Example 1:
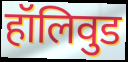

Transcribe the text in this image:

हॉलिवुड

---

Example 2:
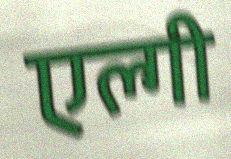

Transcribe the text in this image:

एल्गी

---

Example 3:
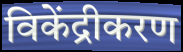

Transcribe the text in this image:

विकेंद्रीकरण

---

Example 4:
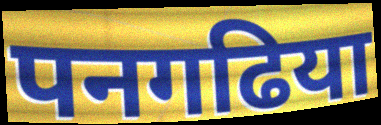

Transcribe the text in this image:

पनगढिया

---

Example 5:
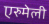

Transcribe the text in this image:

एरुमेली